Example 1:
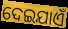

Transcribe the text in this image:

ଦେଇଯାଏଁ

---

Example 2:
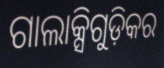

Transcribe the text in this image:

ଗାଲାକ୍ସିଗୁଡ଼ିକର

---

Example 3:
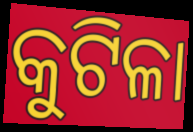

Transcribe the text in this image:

କୁଟିଳା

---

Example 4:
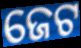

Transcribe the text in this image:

ଜେଟ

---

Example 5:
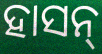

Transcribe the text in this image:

ହାସନ୍